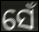
ସେଁ